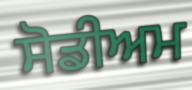
ਸੋਡੀਅਮ